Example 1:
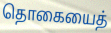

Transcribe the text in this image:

தொகையைத்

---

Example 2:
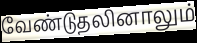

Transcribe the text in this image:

வேண்டுதலினாலும்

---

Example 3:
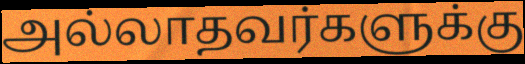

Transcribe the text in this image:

அல்லாதவர்களுக்கு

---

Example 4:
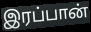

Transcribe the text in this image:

இரப்பான்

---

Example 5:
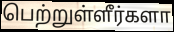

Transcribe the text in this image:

பெற்றுள்ளீர்களா